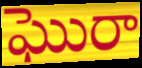
ఘొరా